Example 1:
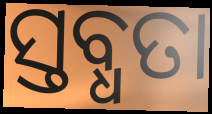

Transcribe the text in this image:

ସ୍ତବ୍ଧତା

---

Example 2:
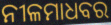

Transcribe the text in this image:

ନୀଳମାଧବର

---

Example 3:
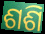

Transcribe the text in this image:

ଶଶି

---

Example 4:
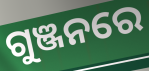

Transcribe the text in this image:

ଗୁଞ୍ଜନରେ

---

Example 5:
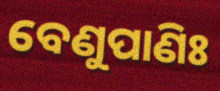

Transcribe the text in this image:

ବେଣୁପାଣିଃ